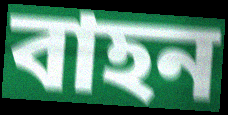
বাহন